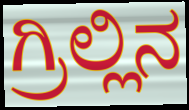
ಗ್ರಿಲ್ಲಿನ